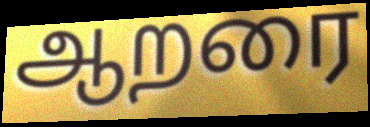
ஆறரை